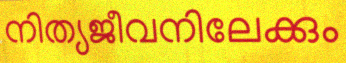
നിത്യജീവനിലേക്കും